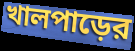
খালপাড়ের